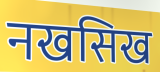
नखसिख